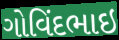
ગોવિંદભાઇ